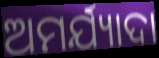
ଅମର୍ଯ୍ୟାଦା